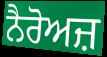
ਨੈਰੋਅਜ਼